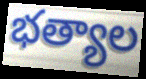
భత్యాల